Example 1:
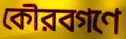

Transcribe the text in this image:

কৌরবগণে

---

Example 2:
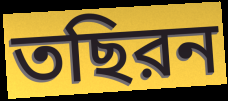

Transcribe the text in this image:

তছিরন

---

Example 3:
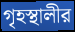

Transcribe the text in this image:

গৃহস্থালীর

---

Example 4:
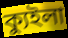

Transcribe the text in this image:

ক্যুইলা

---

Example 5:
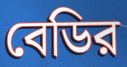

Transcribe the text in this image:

বেডির